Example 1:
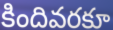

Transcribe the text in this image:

కిందివరకూ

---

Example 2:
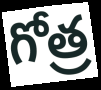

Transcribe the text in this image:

గోత్ర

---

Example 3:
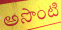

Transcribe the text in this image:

అసొంటి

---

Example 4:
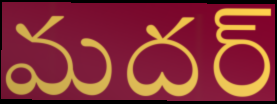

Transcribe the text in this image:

మదర్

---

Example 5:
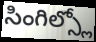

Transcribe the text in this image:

సింగిల్స్లో